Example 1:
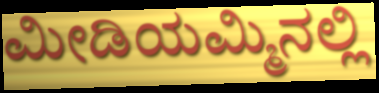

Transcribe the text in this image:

ಮೀಡಿಯಮ್ಮಿನಲ್ಲಿ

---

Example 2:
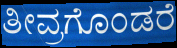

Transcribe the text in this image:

ತೀವ್ರಗೊಂಡರೆ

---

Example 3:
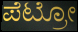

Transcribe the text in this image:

ಪೆಟ್ರೋ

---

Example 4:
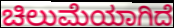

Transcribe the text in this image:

ಚಿಲುಮೆಯಾಗಿದೆ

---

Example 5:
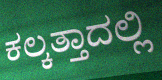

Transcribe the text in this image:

ಕಲ್ಕತ್ತಾದಲ್ಲಿ